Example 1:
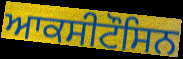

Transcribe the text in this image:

ਆਕਸੀਟੌਸਿਨ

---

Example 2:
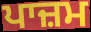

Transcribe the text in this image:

ਪਾਜ਼ਮ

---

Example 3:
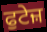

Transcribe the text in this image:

ਫੁਟੇਜ਼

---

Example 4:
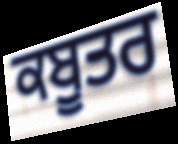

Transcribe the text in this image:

ਕਬੂਤਰ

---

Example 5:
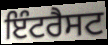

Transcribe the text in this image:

ਇੰਟਰੈਸਟ